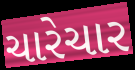
ચારેચાર